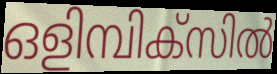
ഒളിമ്പിക്സിൽ